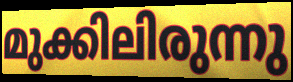
മുക്കിലിരുന്നു